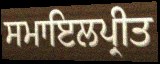
ਸਮਾਇਲਪ੍ਰੀਤ